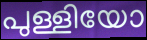
പുള്ളിയോ